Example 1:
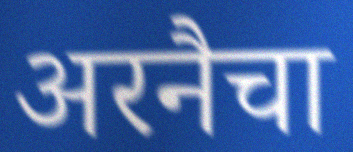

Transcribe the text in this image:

अरनैचा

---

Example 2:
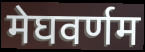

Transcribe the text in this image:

मेघवर्णम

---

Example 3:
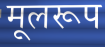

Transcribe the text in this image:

मूलरूप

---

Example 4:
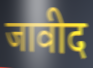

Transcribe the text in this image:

जावीद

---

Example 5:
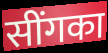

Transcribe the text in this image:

सींगका